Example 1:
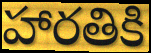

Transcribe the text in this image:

హారతికి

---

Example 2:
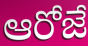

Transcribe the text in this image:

ఆరోజే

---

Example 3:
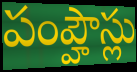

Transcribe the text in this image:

పంప్హౌస్లు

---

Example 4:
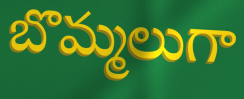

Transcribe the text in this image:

బొమ్మలుగా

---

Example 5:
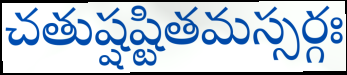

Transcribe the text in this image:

చతుష్షష్టితమస్సర్గః